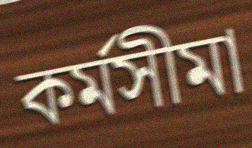
কর্মসীমা